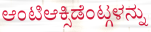
ಆಂಟಿಆಕ್ಸಿಡೆಂಟ್ಗಳನ್ನು